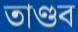
তাণ্ডব